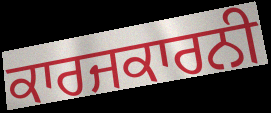
ਕਾਰਜਕਾਰਨੀ